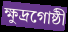
ক্ষুদ্রগোষ্ঠী